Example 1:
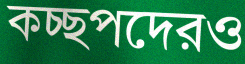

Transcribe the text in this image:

কচ্ছপদেরও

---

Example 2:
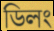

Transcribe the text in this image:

ডিলং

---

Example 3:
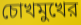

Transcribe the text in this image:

চোখমুখের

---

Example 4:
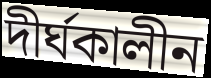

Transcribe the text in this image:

দীর্ঘকালীন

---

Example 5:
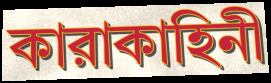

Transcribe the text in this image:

কারাকাহিনী